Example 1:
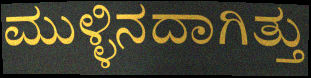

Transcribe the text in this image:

ಮುಳ್ಳಿನದಾಗಿತ್ತು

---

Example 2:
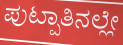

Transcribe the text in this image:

ಪುಟ್ಪಾತಿನಲ್ಲೇ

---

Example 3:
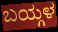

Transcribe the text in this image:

ಬಯ್ಗಳ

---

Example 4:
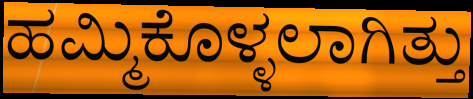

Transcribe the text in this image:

ಹಮ್ಮಿಕೊಳ್ಳಲಾಗಿತ್ತು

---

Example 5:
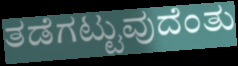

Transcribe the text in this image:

ತಡೆಗಟ್ಟುವುದೆಂತು